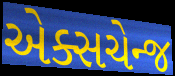
એક્સચેન્જ